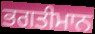
ਭਗਤੀਮਾਨ